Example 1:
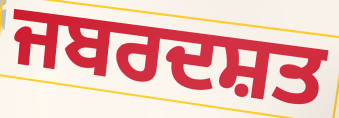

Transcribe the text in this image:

ਜਬਰਦਸ਼ਤ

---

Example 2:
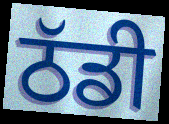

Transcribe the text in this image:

ਠੱਡੀ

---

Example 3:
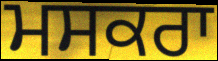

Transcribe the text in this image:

ਮਸਕਰਾ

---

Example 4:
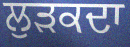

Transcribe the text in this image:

ਲੁੜਕਦਾ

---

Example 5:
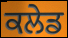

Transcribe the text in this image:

ਕਲੇਡ